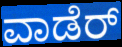
ವಾಡೆರ್